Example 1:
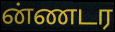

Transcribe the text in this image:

ன்ணடர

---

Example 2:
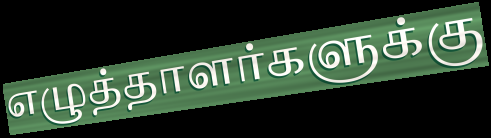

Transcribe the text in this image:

எழுத்தாளர்களுக்கு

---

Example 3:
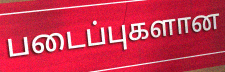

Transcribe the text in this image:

படைப்புகளான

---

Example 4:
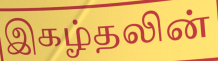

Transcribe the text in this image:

இகழ்தலின்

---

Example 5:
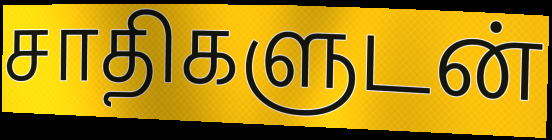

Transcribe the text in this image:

சாதிகளுடன்